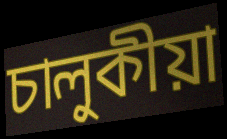
চালুকীয়া